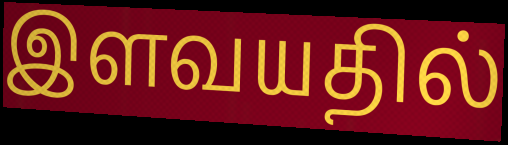
இளவயதில்